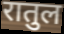
रातुल